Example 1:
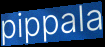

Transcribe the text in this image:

pippala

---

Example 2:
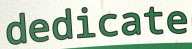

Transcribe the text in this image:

dedicate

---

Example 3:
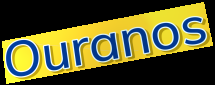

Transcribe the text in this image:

Ouranos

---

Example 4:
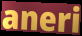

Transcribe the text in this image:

aneri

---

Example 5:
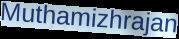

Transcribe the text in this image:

Muthamizhrajan